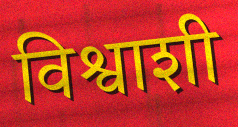
विश्वाशी